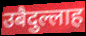
उबैदुल्लाह